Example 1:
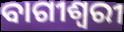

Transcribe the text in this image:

ବାଗୀଶ୍ୱରୀ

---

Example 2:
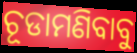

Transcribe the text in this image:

ଚୂଡାମଣିବାବୁ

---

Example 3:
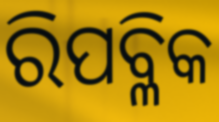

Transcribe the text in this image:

ରିପବ୍ଳିକ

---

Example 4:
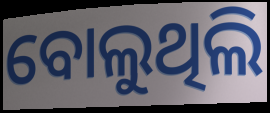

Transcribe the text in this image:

ବୋଲୁଥିଲି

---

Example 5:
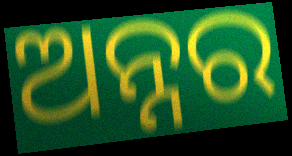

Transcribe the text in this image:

ଅନ୍ନର